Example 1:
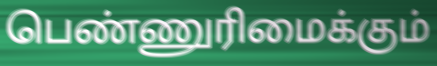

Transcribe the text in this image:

பெண்ணுரிமைக்கும்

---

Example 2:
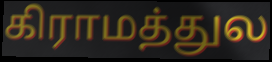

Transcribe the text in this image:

கிராமத்துல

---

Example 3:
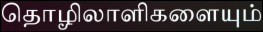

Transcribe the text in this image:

தொழிலாளிகளையும்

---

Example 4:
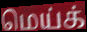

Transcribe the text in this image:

மெய்க்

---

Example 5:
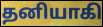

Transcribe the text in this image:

தனியாகி